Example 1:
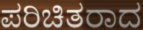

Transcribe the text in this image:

ಪರಿಚಿತರಾದ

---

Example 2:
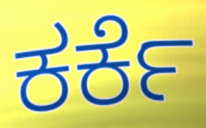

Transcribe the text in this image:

ಕರ್ಕೆ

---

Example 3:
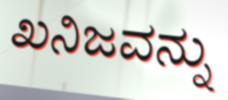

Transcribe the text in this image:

ಖನಿಜವನ್ನು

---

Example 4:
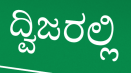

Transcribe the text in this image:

ದ್ವಿಜರಲ್ಲಿ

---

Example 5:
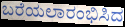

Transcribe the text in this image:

ಬರೆಯಲಾರಂಭಿಸಿದ